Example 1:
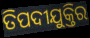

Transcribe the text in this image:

ତିପଦୀଯୁକ୍ତିର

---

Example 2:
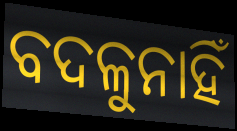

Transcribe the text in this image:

ବଦଳୁନାହିଁ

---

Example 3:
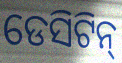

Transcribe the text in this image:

ଡେସିଟିନ୍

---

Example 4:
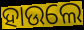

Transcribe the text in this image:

ହାଉଲେ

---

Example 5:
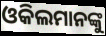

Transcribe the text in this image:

ଓକିଲମାନଙ୍କୁ